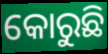
କୋରୁଛି